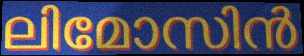
ലിമോസിൻ